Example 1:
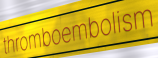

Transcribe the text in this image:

thromboembolism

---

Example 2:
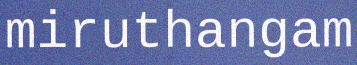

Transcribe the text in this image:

miruthangam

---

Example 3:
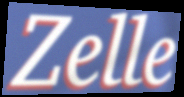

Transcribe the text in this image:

Zelle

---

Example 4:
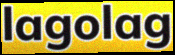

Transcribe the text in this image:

lagolag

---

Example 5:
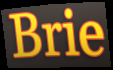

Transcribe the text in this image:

Brie